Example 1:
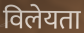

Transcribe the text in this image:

विलेयता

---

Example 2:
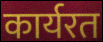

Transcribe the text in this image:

कार्यरत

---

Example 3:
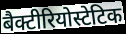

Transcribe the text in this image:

बैक्टीरियोस्टेटिक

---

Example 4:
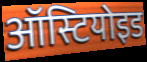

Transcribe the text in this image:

ऑस्टियोइड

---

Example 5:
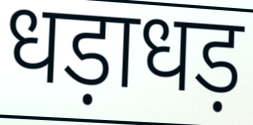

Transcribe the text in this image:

धड़ाधड़